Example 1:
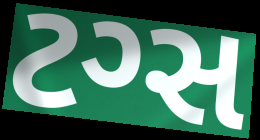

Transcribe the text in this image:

ટગ્સ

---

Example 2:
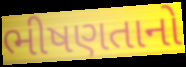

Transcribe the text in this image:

ભીષણતાનો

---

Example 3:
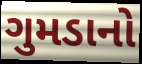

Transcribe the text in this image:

ગુમડાનો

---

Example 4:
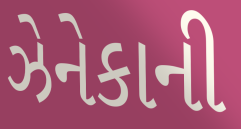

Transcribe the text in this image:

ઝેનેકાની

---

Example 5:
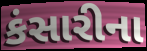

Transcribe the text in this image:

કંસારીના